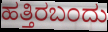
ಹತ್ತಿರಬಂದು